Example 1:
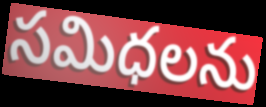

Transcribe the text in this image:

సమిధలను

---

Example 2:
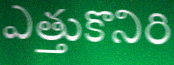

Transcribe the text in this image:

ఎత్తుకొనిరి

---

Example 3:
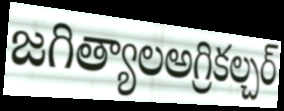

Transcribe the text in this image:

జగిత్యాలఅగ్రికల్చర్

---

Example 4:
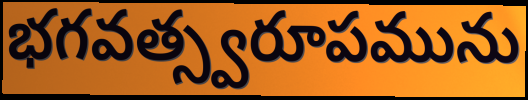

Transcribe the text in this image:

భగవత్స్వరూపమును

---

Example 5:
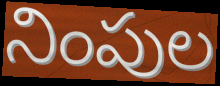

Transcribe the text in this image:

నింపుల